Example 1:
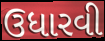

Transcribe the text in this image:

ઉધારવી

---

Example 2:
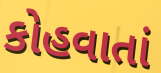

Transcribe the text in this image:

કોહવાતાં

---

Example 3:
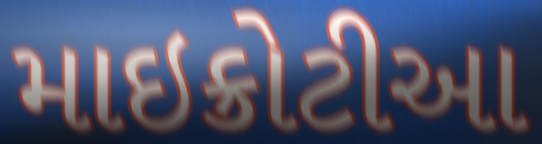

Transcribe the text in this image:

માઇક્રોટીઆ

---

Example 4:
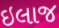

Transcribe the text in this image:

ઇલાજ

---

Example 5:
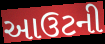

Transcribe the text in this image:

આઉટની